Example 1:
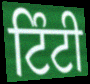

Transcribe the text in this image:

ਟਿੰਟੀ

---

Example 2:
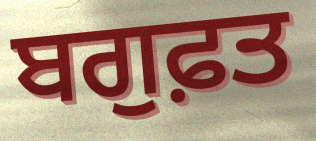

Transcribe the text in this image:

ਬਗੁਫ਼ਤ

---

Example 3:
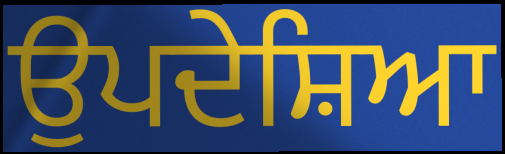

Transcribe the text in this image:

ਉਪਦੇਸ਼ਿਆ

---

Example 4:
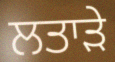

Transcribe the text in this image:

ਲਤਾਡ਼ੇ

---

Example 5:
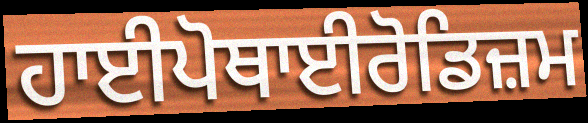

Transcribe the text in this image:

ਹਾਈਪੋਥਾਈਰੋਡਿਜ਼ਮ